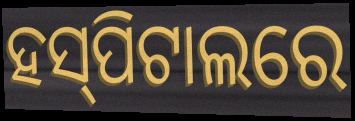
ହସ୍‍ପିଟାଲରେ